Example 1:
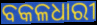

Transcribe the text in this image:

ବକଳଧାରୀ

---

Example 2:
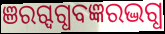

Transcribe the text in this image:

ଞରଗ୍ଦଗ୍ଧବଜ୍ଞରଦ୍ଭଗ୍ଧ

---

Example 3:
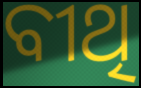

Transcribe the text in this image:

ବୀଥି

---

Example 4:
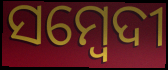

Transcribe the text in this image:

ସମ୍ବେଦୀ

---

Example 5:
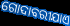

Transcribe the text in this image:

ଗୋଦାବରୀଯାଏ